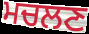
ਮਚਲਣ